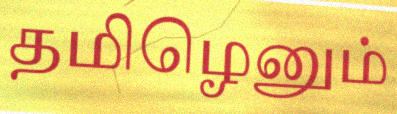
தமிழெனும்